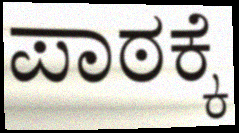
ಪಾಠಕ್ಕೆ